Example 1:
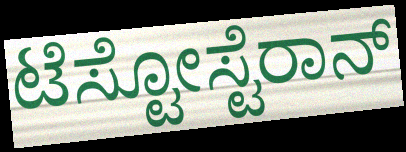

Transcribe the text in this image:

ಟೆಸ್ಟೋಸ್ಟೆರಾನ್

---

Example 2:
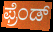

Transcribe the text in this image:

ಫ್ರೆಂಡ್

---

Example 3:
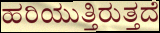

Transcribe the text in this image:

ಹರಿಯುತ್ತಿರುತ್ತದೆ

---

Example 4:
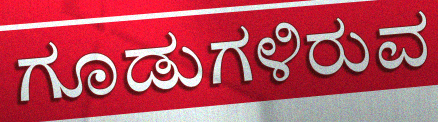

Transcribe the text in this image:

ಗೂಡುಗಳಿರುವ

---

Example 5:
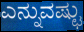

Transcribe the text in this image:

ಎನ್ನುವಷ್ಟು